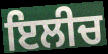
ਇਲੀਚ